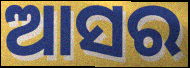
ଆସର